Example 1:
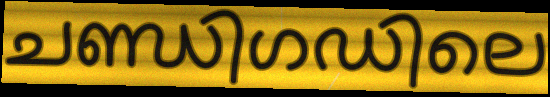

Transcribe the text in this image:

ചണ്ഡിഗഡിലെ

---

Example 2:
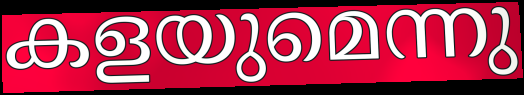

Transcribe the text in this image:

കളയുമെന്നു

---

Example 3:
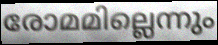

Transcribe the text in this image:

രോമമില്ലെന്നും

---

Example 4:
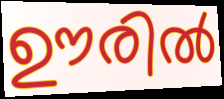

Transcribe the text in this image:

ഊരിൽ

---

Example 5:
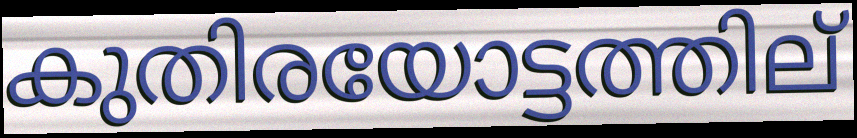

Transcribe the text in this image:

കുതിരയോട്ടത്തില്